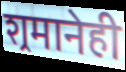
श्रमानेही